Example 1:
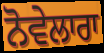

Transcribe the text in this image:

ਨੋਵੇਲਾਰਾ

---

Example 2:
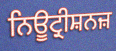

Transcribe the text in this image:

ਨਿਊਟ੍ਰੀਸ਼ਨਜ਼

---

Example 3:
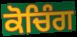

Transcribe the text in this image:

ਕੋਚਿੰਗ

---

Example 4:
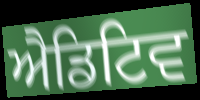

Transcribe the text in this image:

ਐਡਿਟਿਵ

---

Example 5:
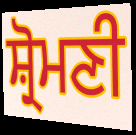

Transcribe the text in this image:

ਸ਼੍ਰੋਮਣੀ